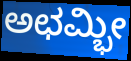
ಅಛಮ್ಭೀ